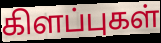
கிளப்புகள்